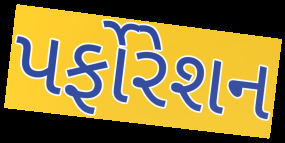
પર્ફોરેશન